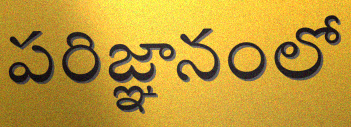
పరిజ్ఞానంలో